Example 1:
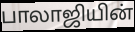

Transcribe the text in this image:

பாலாஜியின்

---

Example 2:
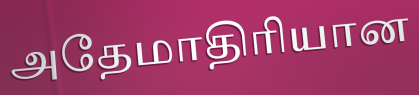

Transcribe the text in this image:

அதேமாதிரியான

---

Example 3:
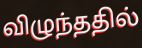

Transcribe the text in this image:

விழுந்ததில்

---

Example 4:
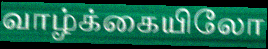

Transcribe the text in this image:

வாழ்க்கையிலோ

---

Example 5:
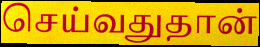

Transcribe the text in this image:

செய்வதுதான்